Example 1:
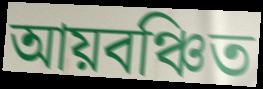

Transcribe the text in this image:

আয়বঞ্চিত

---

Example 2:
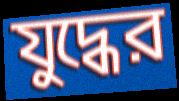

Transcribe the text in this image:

যুদ্ধের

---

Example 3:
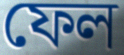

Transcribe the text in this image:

ফেল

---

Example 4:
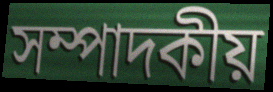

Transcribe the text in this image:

সম্পাদকীয়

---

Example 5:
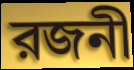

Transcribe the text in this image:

রজনী